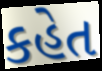
કહેત